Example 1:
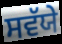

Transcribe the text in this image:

ਸਵੱਯੇ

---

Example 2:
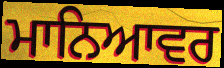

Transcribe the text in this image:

ਮਾਨਿਆਵਰ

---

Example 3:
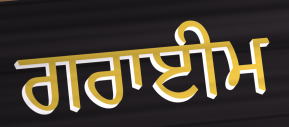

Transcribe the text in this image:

ਗਰਾਈਮ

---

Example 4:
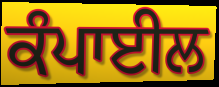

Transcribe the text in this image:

ਕੰਪਾਈਲ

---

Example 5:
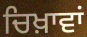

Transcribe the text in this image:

ਚਿਖ਼ਾਵਾਂ